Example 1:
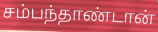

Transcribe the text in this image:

சம்பந்தாண்டான்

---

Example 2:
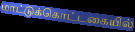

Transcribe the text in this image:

மாட்டுக்கொட்டகையில்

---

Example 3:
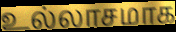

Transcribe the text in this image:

உல்லாசமாக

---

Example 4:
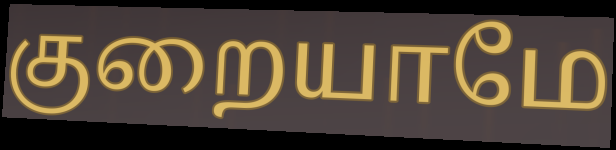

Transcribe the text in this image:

குறையாமே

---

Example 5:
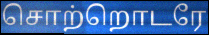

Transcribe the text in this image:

சொற்றொடரே